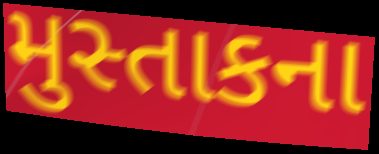
મુસ્તાકના